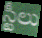
స్టీలు